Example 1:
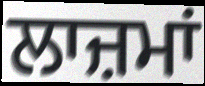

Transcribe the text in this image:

ਲਾਜ਼ਮਾਂ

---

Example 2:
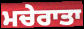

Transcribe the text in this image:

ਮਚੇਰਾਤਾ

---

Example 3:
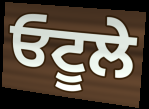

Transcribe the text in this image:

ਓਟੂਲੇ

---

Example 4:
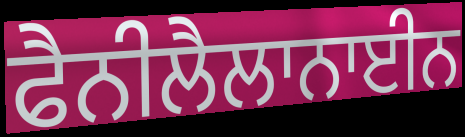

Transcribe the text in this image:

ਫੈਨੀਲੈਲਾਨਾਈਨ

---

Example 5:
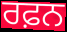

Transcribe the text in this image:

ਰਫ਼ਨ